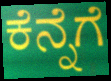
ಕೆನ್ನೆಗೆ